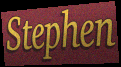
Stephen